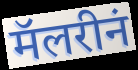
मॅलरीनं